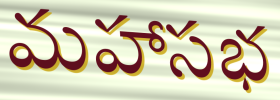
మహాసభ